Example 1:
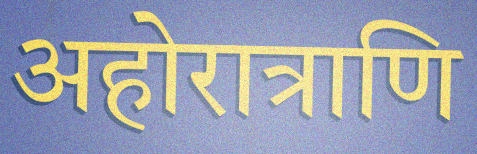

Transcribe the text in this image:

अहोरात्राणि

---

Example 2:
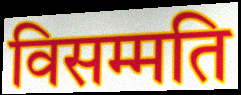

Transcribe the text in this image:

विसम्मति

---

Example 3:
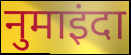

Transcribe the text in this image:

नुमाइंदा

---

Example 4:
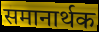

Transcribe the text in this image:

समानार्थक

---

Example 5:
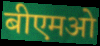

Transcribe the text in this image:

बीएमओ